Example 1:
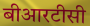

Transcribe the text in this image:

बीआरटीसी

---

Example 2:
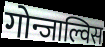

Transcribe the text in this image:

गोन्जाल्विस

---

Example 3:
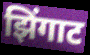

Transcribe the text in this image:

झिंगाट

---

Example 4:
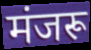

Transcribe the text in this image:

मंजरू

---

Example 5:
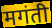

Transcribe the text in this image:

मगंती